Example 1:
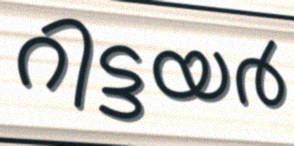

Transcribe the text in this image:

റിട്ടയർ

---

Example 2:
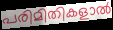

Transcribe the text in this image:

പരിമിതികളാൽ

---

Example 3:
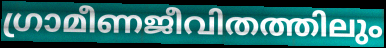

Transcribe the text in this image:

ഗ്രാമീണജീവിതത്തിലും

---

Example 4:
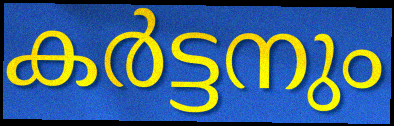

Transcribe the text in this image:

കർട്ടനും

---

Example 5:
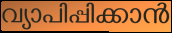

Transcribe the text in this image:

വ്യാപിപ്പിക്കാൻ